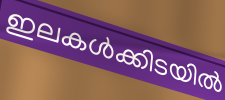
ഇലകൾക്കിടയിൽ